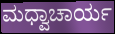
ಮಧ್ವಾಚಾರ್ಯ